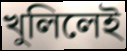
খুলিলেই